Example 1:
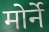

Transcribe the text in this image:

मोर्ने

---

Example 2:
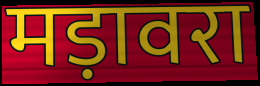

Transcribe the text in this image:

मड़ावरा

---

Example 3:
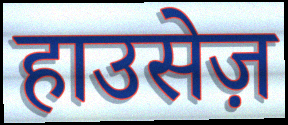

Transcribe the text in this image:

हाउसेज़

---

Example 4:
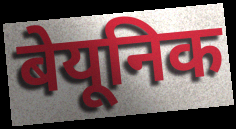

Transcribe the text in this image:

बेयूनिक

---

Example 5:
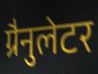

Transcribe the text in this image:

ग्रैनुलेटर